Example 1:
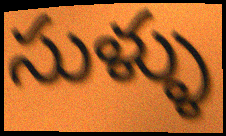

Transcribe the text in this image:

సుళ్ళు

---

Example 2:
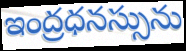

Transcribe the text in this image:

ఇంద్రధనస్సును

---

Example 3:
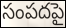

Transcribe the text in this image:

సంపదపై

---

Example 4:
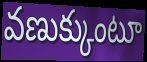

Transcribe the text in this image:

వణుక్కుంటూ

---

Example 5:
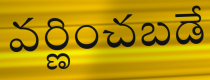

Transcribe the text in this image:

వర్ణించబడే